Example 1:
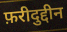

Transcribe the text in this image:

फ़रीदुद्दीन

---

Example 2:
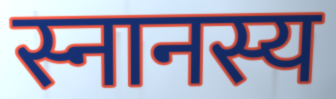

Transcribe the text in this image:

स्नानस्य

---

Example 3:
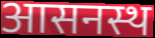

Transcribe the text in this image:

आसनस्थ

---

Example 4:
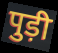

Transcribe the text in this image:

पुड़ी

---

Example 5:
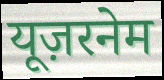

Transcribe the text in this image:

यूज़रनेम